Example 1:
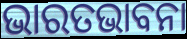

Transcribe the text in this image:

ଭାରତଭାବନା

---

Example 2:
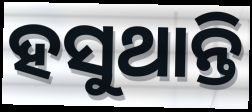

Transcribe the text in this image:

ହସୁଥାନ୍ତି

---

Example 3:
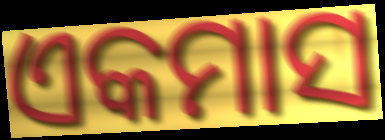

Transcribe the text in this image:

ଏକମାସ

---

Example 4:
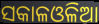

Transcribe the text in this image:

ସକାଳଓଳିଆ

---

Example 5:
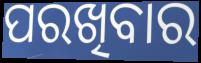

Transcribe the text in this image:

ପରଖିବାର